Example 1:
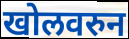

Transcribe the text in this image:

खोलवरुन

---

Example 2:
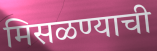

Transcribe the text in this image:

मिसळण्याची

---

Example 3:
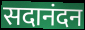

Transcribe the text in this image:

सदानंदन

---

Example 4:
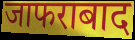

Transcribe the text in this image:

जाफराबाद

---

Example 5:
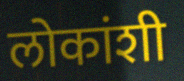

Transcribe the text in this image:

लोकांशी